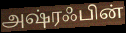
அஷ்ரஃபின்